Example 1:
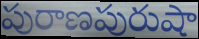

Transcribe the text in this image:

పురాణపురుషా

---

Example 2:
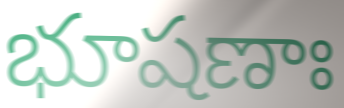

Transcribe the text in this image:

భూషణాః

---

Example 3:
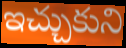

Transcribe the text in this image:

ఇచ్చుకుని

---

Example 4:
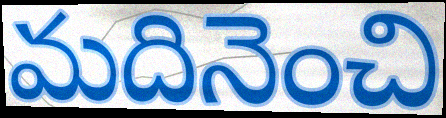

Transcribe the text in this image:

మదినెంచి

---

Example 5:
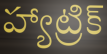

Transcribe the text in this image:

హ్యాట్రిక్